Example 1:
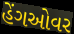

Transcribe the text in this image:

હેંગઓવર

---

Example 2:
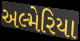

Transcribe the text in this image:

અલ્મેરિયા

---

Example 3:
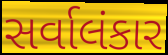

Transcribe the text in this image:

સર્વાલંકાર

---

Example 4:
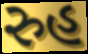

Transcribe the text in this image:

રુહ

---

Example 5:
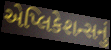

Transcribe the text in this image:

એપ્લિકેશન્સનું